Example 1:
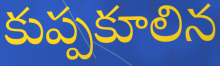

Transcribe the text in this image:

కుప్పకూలిన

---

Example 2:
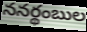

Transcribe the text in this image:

ననర్థంబుల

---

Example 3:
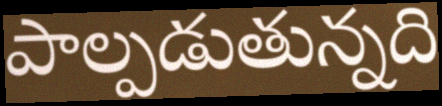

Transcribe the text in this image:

పాల్పడుతున్నది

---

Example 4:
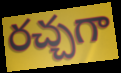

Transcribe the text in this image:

రచ్చగా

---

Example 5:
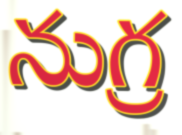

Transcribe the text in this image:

నుగ్ర